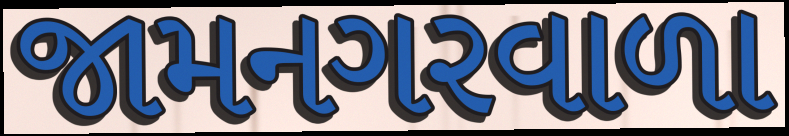
જામનગરવાળા